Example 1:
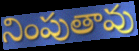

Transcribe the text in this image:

నింపుతావు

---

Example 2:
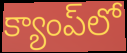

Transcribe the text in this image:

క్యాంప్‌లో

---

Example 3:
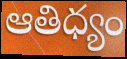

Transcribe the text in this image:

ఆతిధ్యం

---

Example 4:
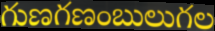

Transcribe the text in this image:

గుణగణంబులుగల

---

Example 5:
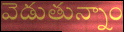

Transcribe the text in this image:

వెడుతున్నాం